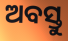
ଅବସ୍ତୁ